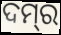
ଦମ୍‌ର